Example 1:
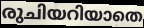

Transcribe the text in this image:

രുചിയറിയാതെ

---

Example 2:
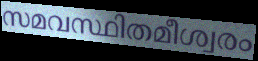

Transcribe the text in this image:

സമവസ്ഥിതമീശ്വരം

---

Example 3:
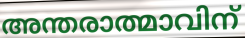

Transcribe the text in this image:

അന്തരാത്മാവിന്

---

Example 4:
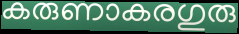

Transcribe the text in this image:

കരുണാകരഗുരു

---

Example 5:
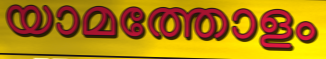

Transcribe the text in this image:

യാമത്തോളം